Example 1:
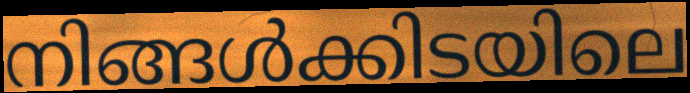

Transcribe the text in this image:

നിങ്ങൾക്കിടയിലെ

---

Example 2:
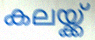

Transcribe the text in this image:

കലയ്ക്ക്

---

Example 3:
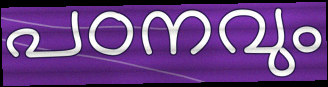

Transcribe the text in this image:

പഠനവും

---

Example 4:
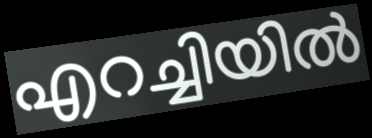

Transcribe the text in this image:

എറച്ചിയിൽ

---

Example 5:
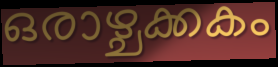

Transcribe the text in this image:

ഒരാഴ്ചക്കകം